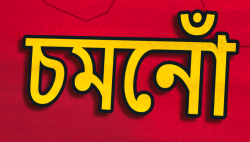
চমনোঁ